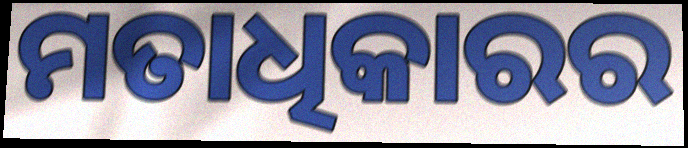
ମତାଧିକାରର